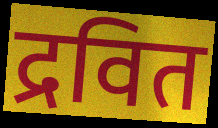
द्रवित